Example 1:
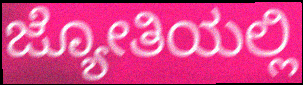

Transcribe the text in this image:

ಜ್ಯೋತಿಯಲ್ಲಿ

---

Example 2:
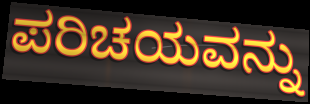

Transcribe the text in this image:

ಪರಿಚಯವನ್ನು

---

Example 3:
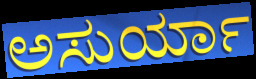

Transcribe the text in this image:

ಅಸುರ್ಯಾ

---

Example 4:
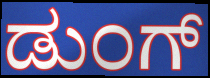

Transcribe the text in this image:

ಡುಂಗ್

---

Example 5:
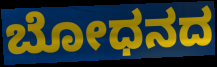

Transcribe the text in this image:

ಬೋಧನದ